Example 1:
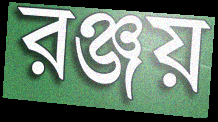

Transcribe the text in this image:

রঞ্জয়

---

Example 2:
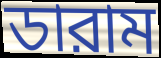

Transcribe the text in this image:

ডারাম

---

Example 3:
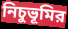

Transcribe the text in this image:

নিচুভূমির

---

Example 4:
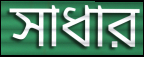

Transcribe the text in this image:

সাধার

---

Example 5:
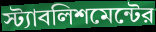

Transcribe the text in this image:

স্ট্যাবলিশমেন্টের